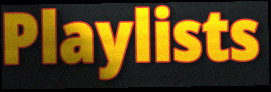
Playlists